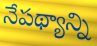
నేపథ్యాన్ని